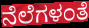
ನೆಲೆಗಳಂತೆ